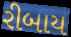
રીબાય